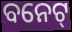
ବନେଟ୍